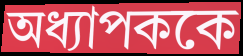
অধ্যাপককে